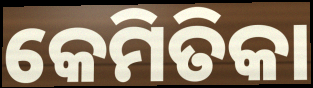
କେମିତିକା